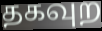
தகவுற